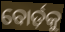
ବୋର୍ଡ଼କୁ